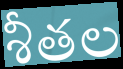
శీతల